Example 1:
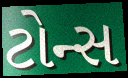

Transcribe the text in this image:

ટોન્સ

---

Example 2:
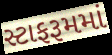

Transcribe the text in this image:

સ્ટાફરૂમમાં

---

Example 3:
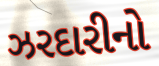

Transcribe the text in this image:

ઝરદારીનો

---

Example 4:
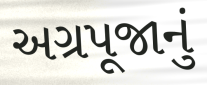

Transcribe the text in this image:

અગ્રપૂજાનું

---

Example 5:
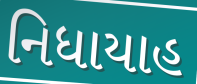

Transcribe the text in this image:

નિધાયાહ